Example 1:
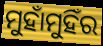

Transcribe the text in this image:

ମୁହାଁମୁହିଁର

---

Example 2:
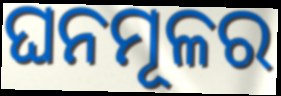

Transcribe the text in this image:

ଘନମୂଳର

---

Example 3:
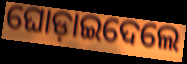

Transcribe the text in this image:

ଘୋଡ଼ାଇଦେଲେ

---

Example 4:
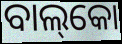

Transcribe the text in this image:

ବାଲ୍‌କୋ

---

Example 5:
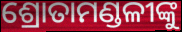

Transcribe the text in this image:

ଶ୍ରୋତାମଣ୍ଡଳୀଙ୍କୁ